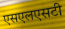
एसएलएसटी